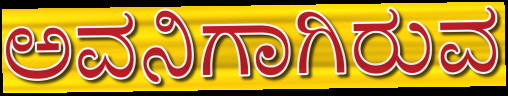
ಅವನಿಗಾಗಿರುವ